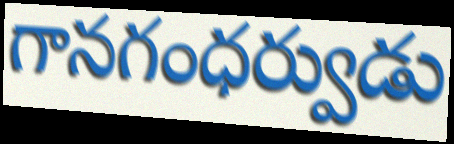
గానగంధర్వుడు